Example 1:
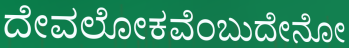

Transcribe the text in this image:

ದೇವಲೋಕವೆಂಬುದೇನೋ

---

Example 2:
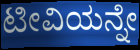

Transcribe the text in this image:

ಟೀವಿಯನ್ನೇ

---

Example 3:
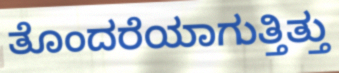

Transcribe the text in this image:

ತೊಂದರೆಯಾಗುತ್ತಿತ್ತು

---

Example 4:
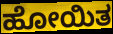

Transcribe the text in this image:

ಹೋಯಿತ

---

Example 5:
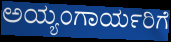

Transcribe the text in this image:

ಅಯ್ಯಂಗಾರ್ಯರಿಗೆ